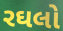
રઘલો